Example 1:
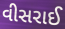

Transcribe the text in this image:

વીસરાઈ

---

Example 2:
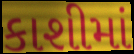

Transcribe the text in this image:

કાશીમાં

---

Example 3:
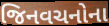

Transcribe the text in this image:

જિનવચનોના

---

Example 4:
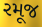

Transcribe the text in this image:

રમૂજ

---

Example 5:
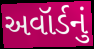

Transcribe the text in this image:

અવૉર્ડનું